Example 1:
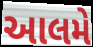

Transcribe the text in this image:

આલમે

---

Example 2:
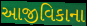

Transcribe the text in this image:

આજીવિકાના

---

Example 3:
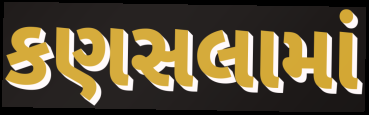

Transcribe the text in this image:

કણસલામાં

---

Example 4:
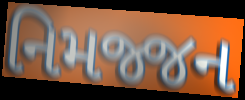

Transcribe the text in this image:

નિમજ્જન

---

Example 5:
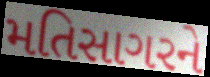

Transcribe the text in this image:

મતિસાગરને